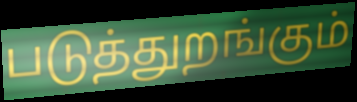
படுத்துறங்கும்